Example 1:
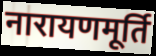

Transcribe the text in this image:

नारायणमूर्ति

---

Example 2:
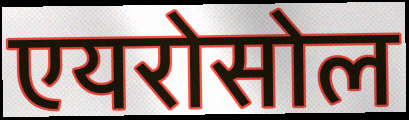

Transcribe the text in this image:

एयरोसोल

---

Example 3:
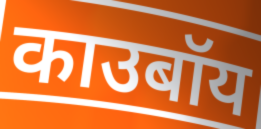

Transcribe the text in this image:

काउबॉय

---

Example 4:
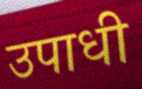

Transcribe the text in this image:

उपाधी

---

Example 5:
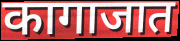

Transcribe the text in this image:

कागाजात